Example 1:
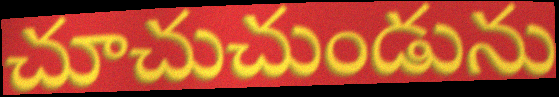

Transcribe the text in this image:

చూచుచుండును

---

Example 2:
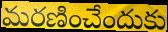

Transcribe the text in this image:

మరణించేందుకు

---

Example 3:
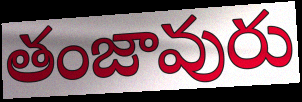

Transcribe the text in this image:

తంజావురు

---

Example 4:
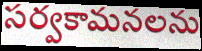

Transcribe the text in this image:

సర్వకామనలను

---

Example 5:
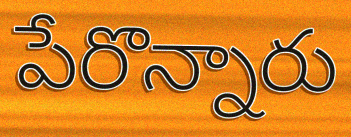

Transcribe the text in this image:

పేరొన్నారు